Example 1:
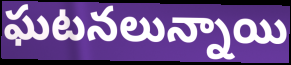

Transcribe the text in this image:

ఘటనలున్నాయి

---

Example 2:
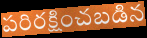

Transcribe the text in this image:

పరిరక్షించబడిన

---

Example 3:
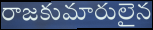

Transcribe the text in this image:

రాజకుమారులైన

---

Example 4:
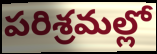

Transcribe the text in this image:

పరిశ్రమల్లో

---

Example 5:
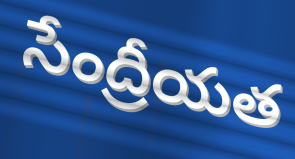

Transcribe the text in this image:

సేంద్రీయత